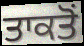
ਤਾਕਤੋਂ